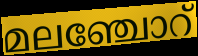
മലഞ്ചോറ്